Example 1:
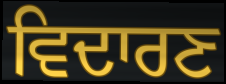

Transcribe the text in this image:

ਵਿਦਾਰਣ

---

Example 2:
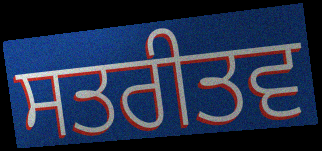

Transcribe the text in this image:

ਸਤਰੀਤਵ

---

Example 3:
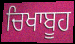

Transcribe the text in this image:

ਚਿਖਾਬੂਹ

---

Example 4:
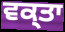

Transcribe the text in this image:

ਵਕ੍ਤਾ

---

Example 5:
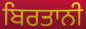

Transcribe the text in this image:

ਬਿਰਤਾਨੀ